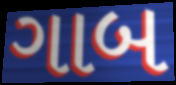
ગાબ